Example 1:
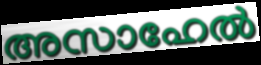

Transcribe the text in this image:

അസാഹേൽ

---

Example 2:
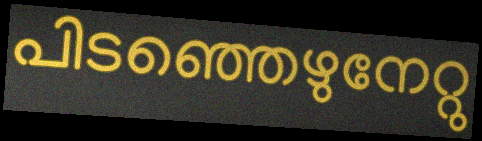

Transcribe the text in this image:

പിടഞ്ഞെഴുനേറ്റു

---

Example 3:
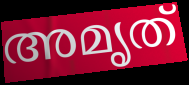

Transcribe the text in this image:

അമൃത്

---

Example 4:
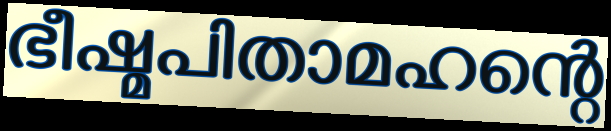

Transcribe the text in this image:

ഭീഷ്മപിതാമഹന്റെ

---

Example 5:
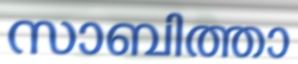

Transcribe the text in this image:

സാബിത്താ